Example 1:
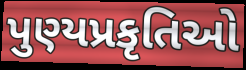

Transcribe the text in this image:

પુણ્યપ્રકૃતિઓ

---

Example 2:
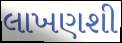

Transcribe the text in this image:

લાખણશી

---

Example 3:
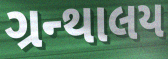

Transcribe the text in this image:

ગ્રન્થાલય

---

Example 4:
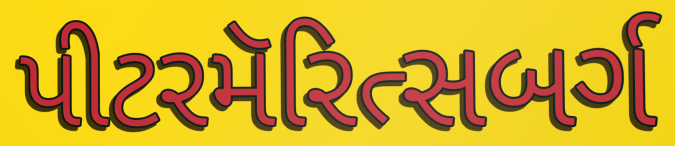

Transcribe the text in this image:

પીટરમૅરિત્સબર્ગ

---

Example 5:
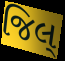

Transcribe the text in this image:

જિલ્